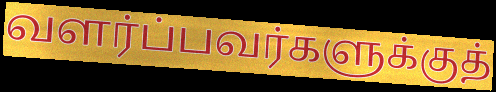
வளர்ப்பவர்களுக்குத்